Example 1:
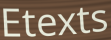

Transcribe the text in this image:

Etexts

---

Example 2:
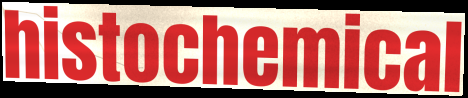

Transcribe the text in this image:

histochemical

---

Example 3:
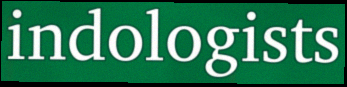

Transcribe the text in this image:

indologists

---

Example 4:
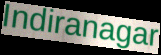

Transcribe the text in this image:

Indiranagar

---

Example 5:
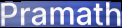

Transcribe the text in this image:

Pramath